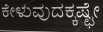
ಕೇಳುವುದಕ್ಕಷ್ಟೇ